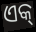
ଏକ୍